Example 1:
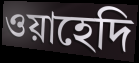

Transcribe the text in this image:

ওয়াহেদি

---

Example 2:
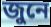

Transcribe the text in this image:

জুনে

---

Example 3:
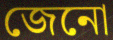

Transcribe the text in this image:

জেনো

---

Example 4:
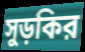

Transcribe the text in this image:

সুড়কির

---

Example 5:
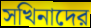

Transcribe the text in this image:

সখিনাদের